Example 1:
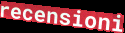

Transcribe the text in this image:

recensioni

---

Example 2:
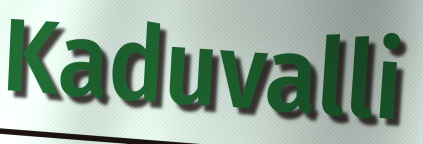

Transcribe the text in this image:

Kaduvalli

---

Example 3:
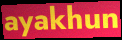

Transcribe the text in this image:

ayakhun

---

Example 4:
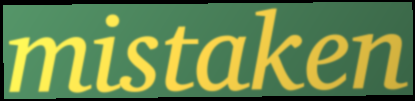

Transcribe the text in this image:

mistaken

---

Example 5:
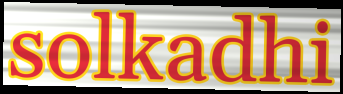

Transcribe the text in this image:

solkadhi